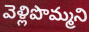
వెళ్లిపొమ్మని